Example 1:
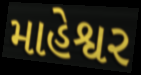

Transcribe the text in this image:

માહેશ્વર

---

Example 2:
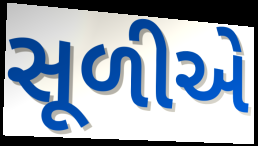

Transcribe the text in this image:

સૂળીએ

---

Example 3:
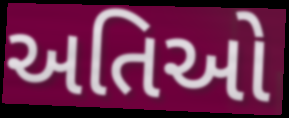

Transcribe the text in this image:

અતિઓ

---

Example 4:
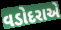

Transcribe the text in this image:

વડોદરાએ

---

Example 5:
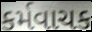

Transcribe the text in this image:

કર્મવાચક